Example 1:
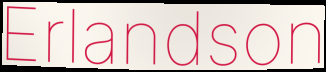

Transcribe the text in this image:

Erlandson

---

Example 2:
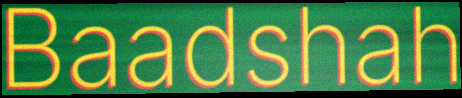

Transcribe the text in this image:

Baadshah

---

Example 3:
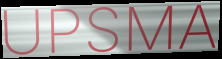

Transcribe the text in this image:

UPSMA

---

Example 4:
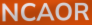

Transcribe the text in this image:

NCAOR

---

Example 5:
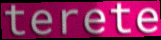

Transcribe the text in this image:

terete